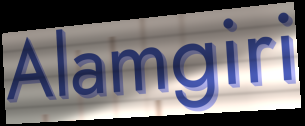
Alamgiri